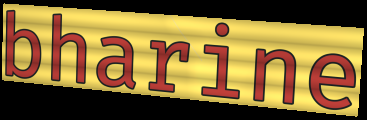
bharine